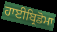
ਹਾਈਬ੍ਰਿਡੋਮਾ